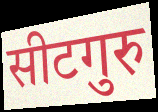
सीटगुरु